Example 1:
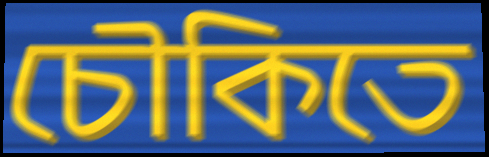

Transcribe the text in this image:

চৌকিতে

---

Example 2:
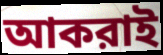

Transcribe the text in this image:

আকরাই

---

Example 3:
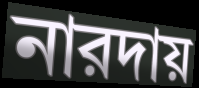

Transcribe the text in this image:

নারদায়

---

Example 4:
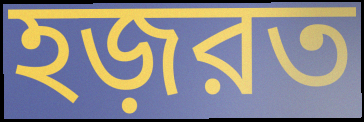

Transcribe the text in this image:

হজ়রত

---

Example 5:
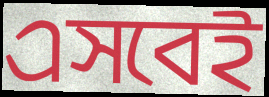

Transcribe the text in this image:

এসবেই